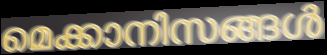
മെക്കാനിസങ്ങൾ